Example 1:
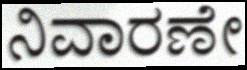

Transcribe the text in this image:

ನಿವಾರಣೇ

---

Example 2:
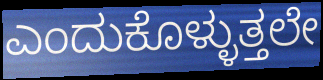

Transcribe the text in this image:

ಎಂದುಕೊಳ್ಳುತ್ತಲೇ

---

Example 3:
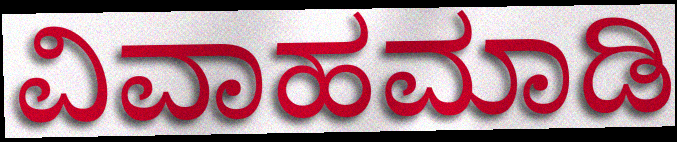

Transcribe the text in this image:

ವಿವಾಹಮಾಡಿ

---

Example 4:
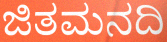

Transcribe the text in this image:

ಜಿತಮನದಿ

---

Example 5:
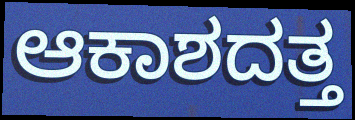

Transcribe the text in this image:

ಆಕಾಶದತ್ತ